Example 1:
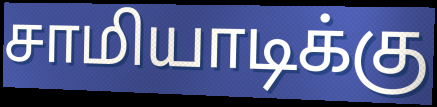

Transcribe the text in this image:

சாமியாடிக்கு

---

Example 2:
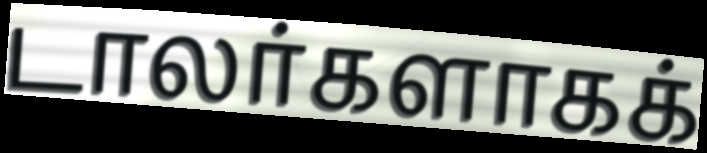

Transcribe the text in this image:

டாலர்களாகக்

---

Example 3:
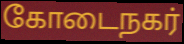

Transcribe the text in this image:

கோடைநகர்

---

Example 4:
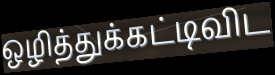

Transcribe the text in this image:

ஒழித்துக்கட்டிவிட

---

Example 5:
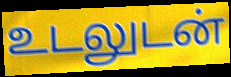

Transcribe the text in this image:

உடலுடன்